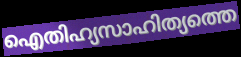
ഐതിഹ്യസാഹിത്യത്തെ